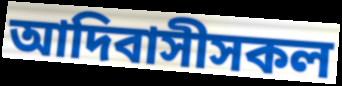
আদিবাসীসকল